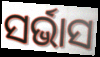
ସର୍ଭାସ